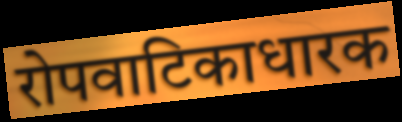
रोपवाटिकाधारक